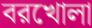
বরখোলা